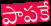
పాపకే